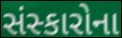
સંસ્કારોના